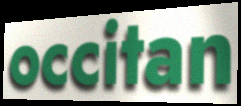
occitan